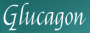
Glucagon